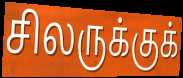
சிலருக்குக்